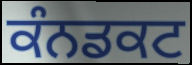
ਕੰਨਡਕਟ